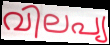
വിലപ്യ